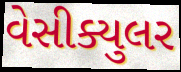
વેસીક્યુલર